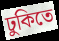
ঢুকিতে